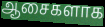
ஆசைகளாக